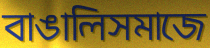
বাঙালিসমাজে